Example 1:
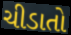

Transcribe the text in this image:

ચીડાતો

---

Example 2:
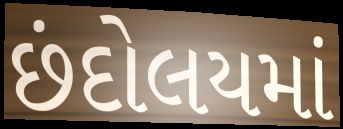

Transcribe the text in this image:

છંદોલયમાં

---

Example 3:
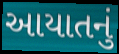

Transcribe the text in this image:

આયાતનું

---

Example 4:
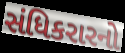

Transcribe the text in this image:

સંધિકરારનો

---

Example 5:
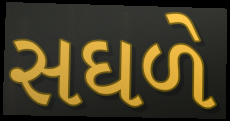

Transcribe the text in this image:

સઘળે